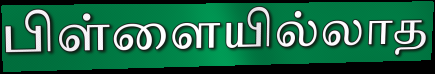
பிள்ளையில்லாத